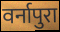
वर्नापुरा